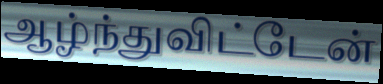
ஆழ்ந்துவிட்டேன்